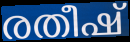
രതീഷ്